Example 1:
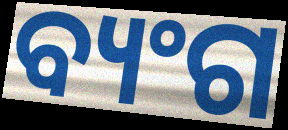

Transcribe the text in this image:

ବ୍ୟଂଗ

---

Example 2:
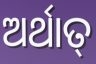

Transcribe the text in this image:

ଅର୍ଥାତ୍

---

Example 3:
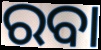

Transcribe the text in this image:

ରବା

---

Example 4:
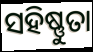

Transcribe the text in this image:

ସହିଷ୍ଣୁତା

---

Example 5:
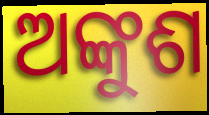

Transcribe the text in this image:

ଅଙ୍କୁଶ